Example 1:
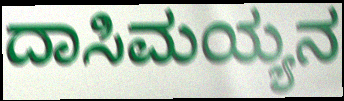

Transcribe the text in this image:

ದಾಸಿಮಯ್ಯನ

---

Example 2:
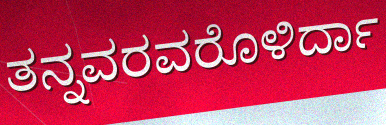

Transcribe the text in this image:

ತನ್ನವರವರೊಳಿರ್ದಾ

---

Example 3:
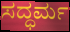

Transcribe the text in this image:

ಸದ್ಧರ್ಮ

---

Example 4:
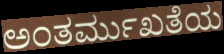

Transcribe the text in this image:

ಅಂತರ್ಮುಖತೆಯ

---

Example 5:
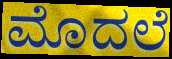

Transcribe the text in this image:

ಮೊದಲೆ